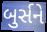
બુર્સને